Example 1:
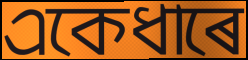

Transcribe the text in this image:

একেধাৰে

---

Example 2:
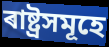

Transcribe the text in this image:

ৰাষ্ট্ৰসমূহে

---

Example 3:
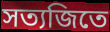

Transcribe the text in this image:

সত্যজিতে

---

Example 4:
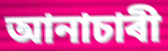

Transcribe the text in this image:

আনাচাৰী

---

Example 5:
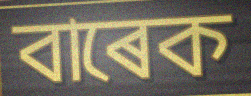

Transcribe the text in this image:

বাৰেক